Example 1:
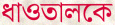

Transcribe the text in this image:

ধাওতালকে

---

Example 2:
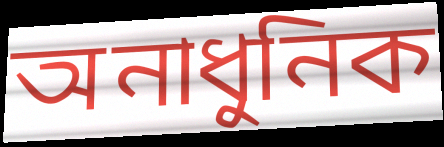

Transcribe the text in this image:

অনাধুনিক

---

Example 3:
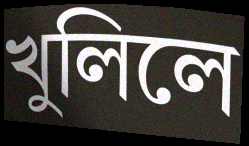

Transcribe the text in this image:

খুলিলে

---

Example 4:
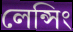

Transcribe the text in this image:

লেন্সিং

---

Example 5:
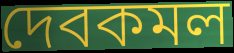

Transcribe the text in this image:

দেবকমল